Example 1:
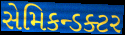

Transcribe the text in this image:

સેમિકન્ડક્ટર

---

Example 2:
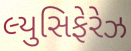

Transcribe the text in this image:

લ્યુસિફેરેઝ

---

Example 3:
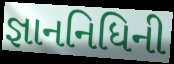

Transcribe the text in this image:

જ્ઞાનનિધિની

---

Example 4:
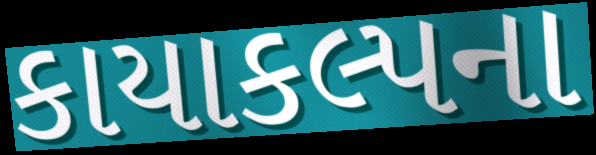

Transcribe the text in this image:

કાયાકલ્પના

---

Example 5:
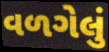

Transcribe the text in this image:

વળગેલું